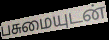
பசுமையுடன்